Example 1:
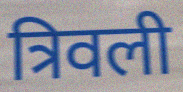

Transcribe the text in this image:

त्रिवली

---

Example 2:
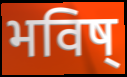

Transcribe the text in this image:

भविष्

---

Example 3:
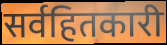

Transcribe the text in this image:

सर्वहितकारी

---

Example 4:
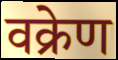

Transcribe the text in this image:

वक्रेण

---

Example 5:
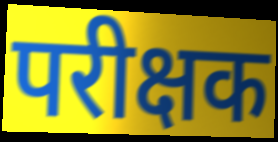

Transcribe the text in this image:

परीक्षक